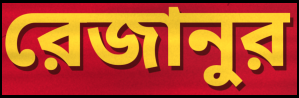
রেজানুর